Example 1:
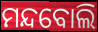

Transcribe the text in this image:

ମନ୍ଦବୋଲି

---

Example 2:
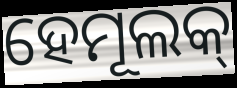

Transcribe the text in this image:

ହେମୂଲକ୍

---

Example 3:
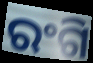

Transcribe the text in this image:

ରଂଗି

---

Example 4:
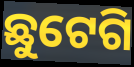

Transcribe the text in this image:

ଛୁଟେଗି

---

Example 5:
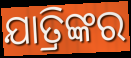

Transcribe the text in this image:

ଯାତ୍ରିଙ୍କର